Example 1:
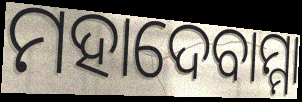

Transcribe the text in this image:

ମହାଦେବାମ୍ମା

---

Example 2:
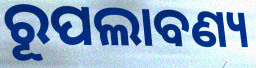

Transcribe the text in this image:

ରୂପଲାବଣ୍ୟ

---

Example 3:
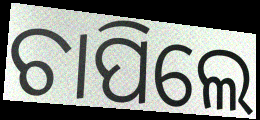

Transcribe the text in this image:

ଚାପିଲେ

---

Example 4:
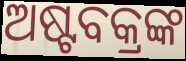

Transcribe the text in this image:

ଅଷ୍ଟବକ୍ରଙ୍କ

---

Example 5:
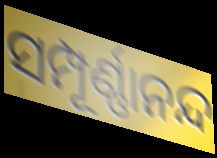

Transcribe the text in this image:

ସମ୍ପୂର୍ଣ୍ଣାନନ୍ଦ